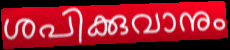
ശപിക്കുവാനും